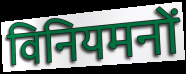
विनियमनों